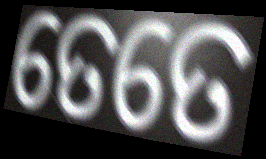
ତେତେ